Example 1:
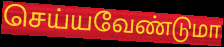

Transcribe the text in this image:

செய்யவேண்டுமா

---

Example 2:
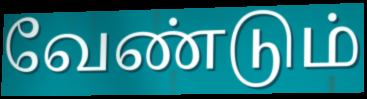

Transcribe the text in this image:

வேண்டும்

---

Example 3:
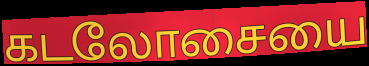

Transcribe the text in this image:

கடலோசையை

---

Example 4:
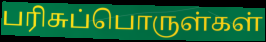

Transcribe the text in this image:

பரிசுப்பொருள்கள்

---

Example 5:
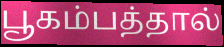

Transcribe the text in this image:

பூகம்பத்தால்